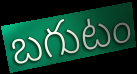
బగుటం